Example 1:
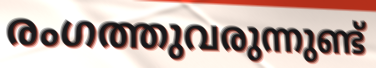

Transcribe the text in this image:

രംഗത്തുവരുന്നുണ്ട്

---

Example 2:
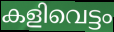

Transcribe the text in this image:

കളിവെട്ടം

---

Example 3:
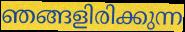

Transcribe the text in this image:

ഞങ്ങളിരിക്കുന്ന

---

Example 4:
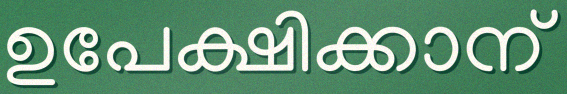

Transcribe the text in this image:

ഉപേക്ഷിക്കാന്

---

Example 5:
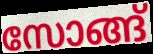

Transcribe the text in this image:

സോങ്ങ്